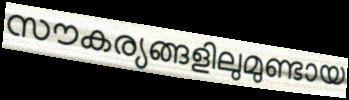
സൗകര്യങ്ങളിലുമുണ്ടായ